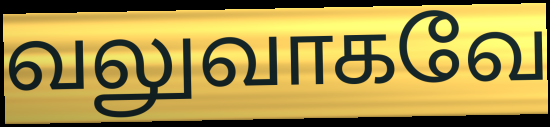
வலுவாகவே